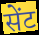
सेंट